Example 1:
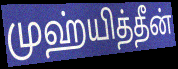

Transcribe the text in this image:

முஹ்யித்தீன்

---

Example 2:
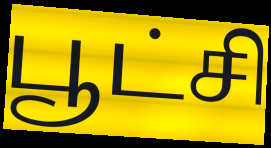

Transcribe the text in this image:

பூட்சி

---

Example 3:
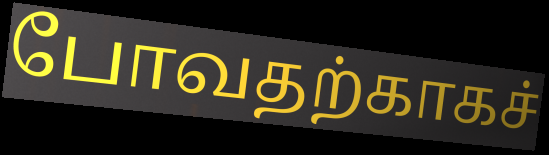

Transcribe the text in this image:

போவதற்காகச்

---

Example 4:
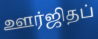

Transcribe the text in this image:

ஊர்ஜிதப்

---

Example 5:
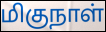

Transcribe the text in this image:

மிகுநாள்